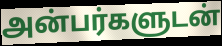
அன்பர்களுடன்